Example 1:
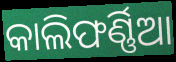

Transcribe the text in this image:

କାଲିଫର୍ଣ୍ଣିଆ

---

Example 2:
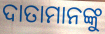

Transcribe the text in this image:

ଦାତାମାନଙ୍କୁ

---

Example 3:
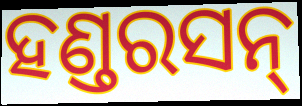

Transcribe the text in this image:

ହଣ୍ଡରସନ୍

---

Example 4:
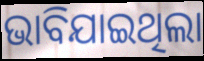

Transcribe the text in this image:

ଭାବିଯାଇଥିଲା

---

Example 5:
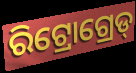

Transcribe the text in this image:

ରିଟ୍ରୋଗ୍ରେଡ୍